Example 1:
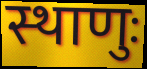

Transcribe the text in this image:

स्थाणुः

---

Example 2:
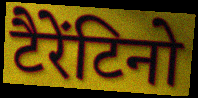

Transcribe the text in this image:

टैरेंटिनो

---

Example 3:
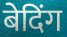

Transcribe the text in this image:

बेदिंग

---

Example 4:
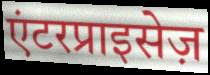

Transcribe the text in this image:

एंटरप्राइसेज़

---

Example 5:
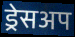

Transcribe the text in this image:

ड्रेसअप